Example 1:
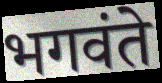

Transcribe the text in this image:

भगवंते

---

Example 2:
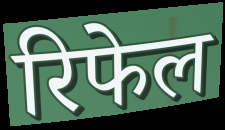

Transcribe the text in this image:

रिफेल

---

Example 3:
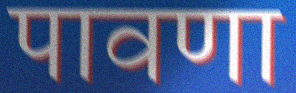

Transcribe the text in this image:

पावणा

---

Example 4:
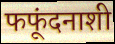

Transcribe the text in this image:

फफूंदनाशी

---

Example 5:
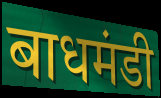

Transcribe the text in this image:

बाधमंडी